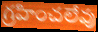
గ్రహించలేవు